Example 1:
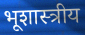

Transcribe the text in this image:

भूशास्त्रीय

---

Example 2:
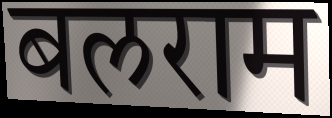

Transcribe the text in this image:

बलराम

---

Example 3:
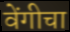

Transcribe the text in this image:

वेंगीचा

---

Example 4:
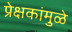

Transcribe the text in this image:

प्रेक्षकांमुळे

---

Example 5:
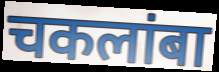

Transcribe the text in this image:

चकलांबा